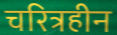
चरित्रहीन